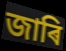
জাৰি